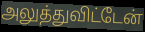
அலுத்துவிட்டேன்